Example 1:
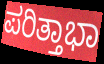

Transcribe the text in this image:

ಪರಿತ್ತಾಭಾ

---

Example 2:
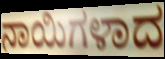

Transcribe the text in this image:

ನಾಯಿಗಳಾದ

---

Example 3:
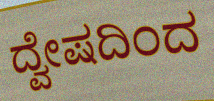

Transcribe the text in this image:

ದ್ವೇಷದಿಂದ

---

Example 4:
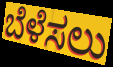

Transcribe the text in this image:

ಬೆಳೆಸಲು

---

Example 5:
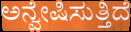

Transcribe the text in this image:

ಅನ್ವೇಷಿಸುತ್ತಿದೆ